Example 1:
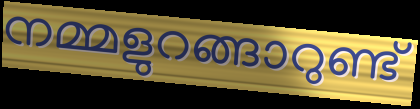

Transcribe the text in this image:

നമ്മളുറങ്ങാറുണ്ട്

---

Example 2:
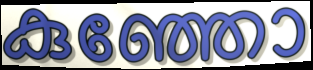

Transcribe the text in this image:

കുഞ്ഞോ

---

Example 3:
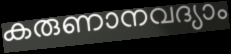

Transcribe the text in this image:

കരുണാനവദ്യാം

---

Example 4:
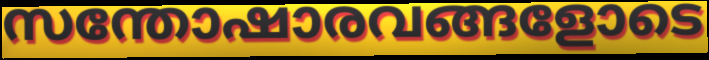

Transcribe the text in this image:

സന്തോഷാരവങ്ങളോടെ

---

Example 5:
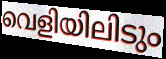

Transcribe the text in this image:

വെളിയിലിടും